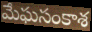
మేఘసంకాశ